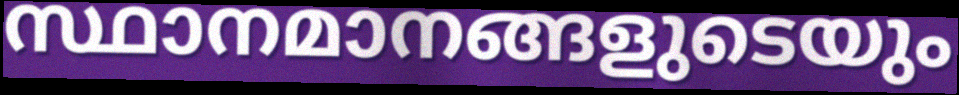
സ്ഥാനമാനങ്ങളുടെയും